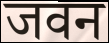
जवन